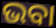
ଭବା